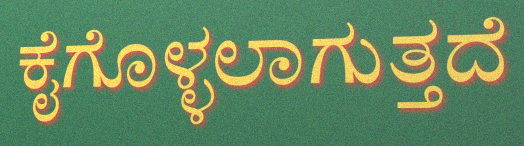
ಕೈಗೊಳ್ಳಲಾಗುತ್ತದೆ